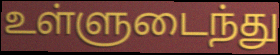
உள்ளுடைந்து